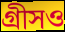
গ্রীসও